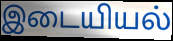
இடையியல்